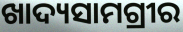
ଖାଦ୍ୟସାମଗ୍ରୀର